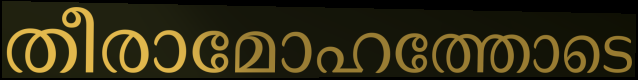
തീരാമോഹത്തോടെ